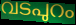
വടപുറം